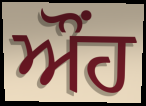
ਔਂਹ